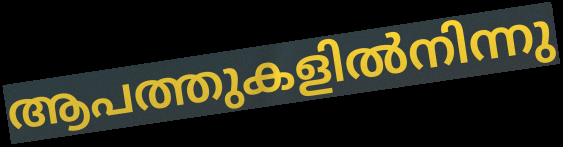
ആപത്തുകളിൽനിന്നു